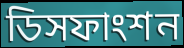
ডিসফাংশন